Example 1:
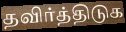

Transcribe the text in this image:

தவிர்த்திடுக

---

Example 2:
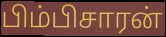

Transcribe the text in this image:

பிம்பிசாரன்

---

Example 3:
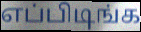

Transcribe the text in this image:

எப்பிடிங்க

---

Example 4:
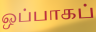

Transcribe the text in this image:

ஒப்பாகப்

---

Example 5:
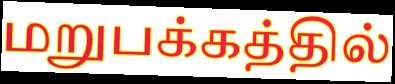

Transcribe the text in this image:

மறுபக்கத்தில்